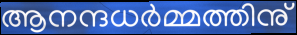
ആനന്ദധർമ്മത്തിനു്